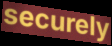
securely